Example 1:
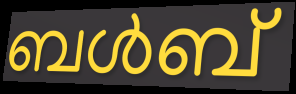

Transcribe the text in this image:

ബൾബ്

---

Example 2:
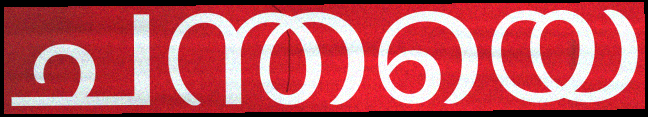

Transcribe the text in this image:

ചന്തയെ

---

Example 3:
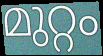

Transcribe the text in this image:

മുറ്റം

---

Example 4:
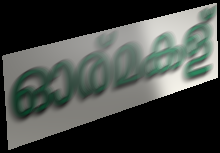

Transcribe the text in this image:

ഓര്മകള്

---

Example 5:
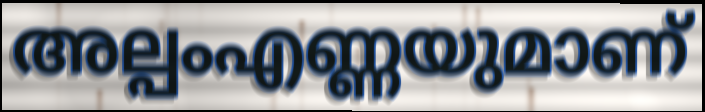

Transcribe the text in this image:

അല്പംഎണ്ണയുമാണ്